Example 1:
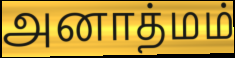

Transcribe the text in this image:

அனாத்மம்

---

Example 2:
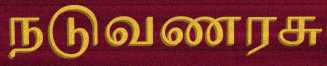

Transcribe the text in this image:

நடுவணரசு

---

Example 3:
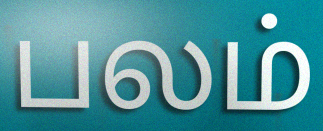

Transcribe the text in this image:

பலம்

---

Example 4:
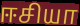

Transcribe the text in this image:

ஈசியா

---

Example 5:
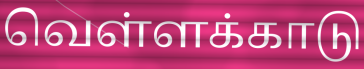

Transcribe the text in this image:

வெள்ளக்காடு